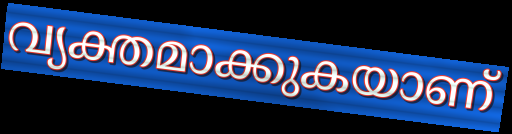
വ്യക്തമാക്കുകയാണ്